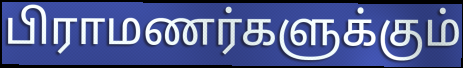
பிராமணர்களுக்கும்